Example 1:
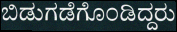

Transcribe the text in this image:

ಬಿಡುಗಡೆಗೊಂಡಿದ್ದರು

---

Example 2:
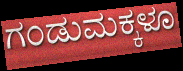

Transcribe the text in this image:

ಗಂಡುಮಕ್ಕಳೂ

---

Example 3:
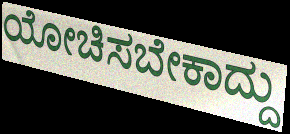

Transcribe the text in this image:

ಯೋಚಿಸಬೇಕಾದ್ದು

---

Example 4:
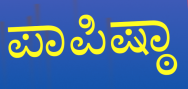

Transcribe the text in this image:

ಪಾಪಿಷ್ಠಾ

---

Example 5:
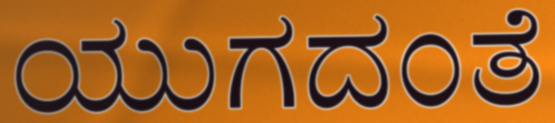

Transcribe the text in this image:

ಯುಗದಂತೆ